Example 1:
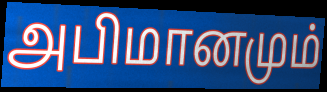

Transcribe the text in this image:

அபிமானமும்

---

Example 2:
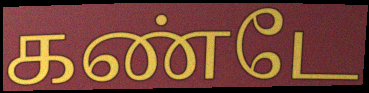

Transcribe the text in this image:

கண்டே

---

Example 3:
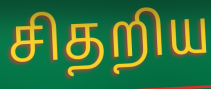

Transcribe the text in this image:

சிதறிய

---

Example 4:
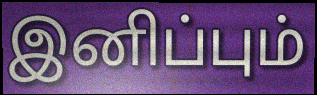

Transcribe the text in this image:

இனிப்பும்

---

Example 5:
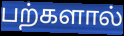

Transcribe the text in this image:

பற்களால்